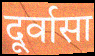
दूर्वासा